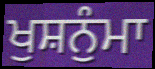
ਖੁਸ਼ਨੁੰਮਾ